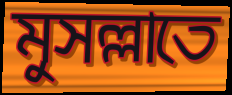
মুসল্লাতে